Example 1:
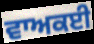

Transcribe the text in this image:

ਵਾਅਕਈ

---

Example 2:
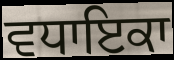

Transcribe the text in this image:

ਵਧਾਇਕਾ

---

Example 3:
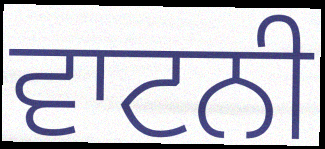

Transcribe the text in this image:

ਵਾਟਨੀ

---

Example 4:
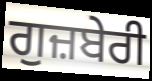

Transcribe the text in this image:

ਗੁਜ਼ਬੇਰੀ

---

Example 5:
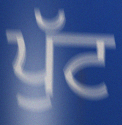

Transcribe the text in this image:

ਪੁੱਟ